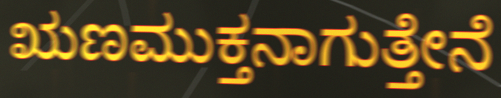
ಋಣಮುಕ್ತನಾಗುತ್ತೇನೆ